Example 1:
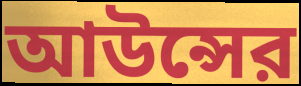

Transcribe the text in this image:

আউন্সের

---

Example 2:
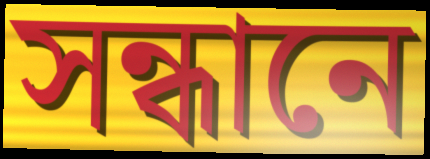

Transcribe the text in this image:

সন্ধানে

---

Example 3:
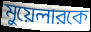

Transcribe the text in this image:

মুয়েলারকে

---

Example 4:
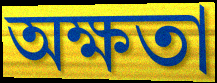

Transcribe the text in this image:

অক্ষতা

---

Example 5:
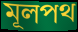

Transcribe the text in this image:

মূলপথ